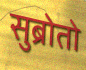
सुब्रोतो